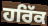
ਹਰਿੱਕ